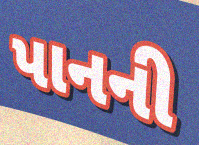
પાનની